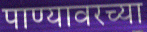
पाण्यावरच्या